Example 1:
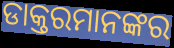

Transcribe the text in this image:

ଡାକ୍ତରମାନଙ୍କର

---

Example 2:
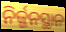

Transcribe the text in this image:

ନିର୍ଜ୍ଜନସ୍ଥାନ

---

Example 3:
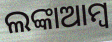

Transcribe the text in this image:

ଲଙ୍କାଆମ୍ବ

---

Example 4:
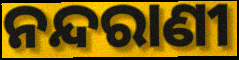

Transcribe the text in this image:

ନନ୍ଦରାଣୀ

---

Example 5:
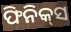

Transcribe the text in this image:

ଫିନିକ୍‌ସ